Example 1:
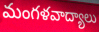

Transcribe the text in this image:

మంగళవాద్యాలు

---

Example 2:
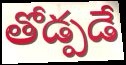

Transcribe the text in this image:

తోడ్పడే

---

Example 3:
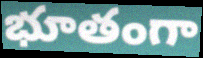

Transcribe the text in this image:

భూతంగా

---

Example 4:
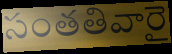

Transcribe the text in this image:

సంతతివారై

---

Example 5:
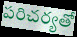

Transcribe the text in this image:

పరిచర్యతో